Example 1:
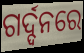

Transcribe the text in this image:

ଗର୍ଦ୍ଦନରେ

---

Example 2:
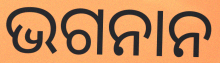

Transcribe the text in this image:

ଭଗନାନ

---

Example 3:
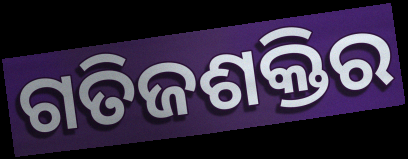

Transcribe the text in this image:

ଗତିଜଶକ୍ତିର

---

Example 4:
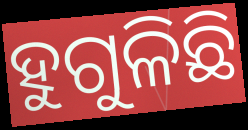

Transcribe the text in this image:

ହୁଗୁଳିଛି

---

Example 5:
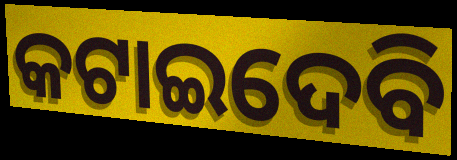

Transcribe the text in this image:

କଟାଇଦେବି